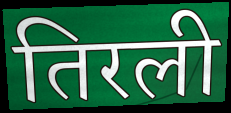
तिरली